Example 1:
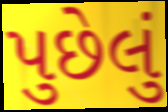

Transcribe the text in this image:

પુછેલું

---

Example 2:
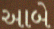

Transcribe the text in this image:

આબે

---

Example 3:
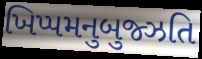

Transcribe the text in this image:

ખિપ્પમનુબુજ્ઝતિ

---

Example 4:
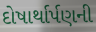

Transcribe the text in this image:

દોષાર્થાર્પણની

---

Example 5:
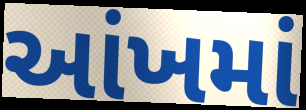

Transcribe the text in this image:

આંખમાં